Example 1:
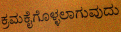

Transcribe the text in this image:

ಕ್ರಮಕೈಗೊಳ್ಳಲಾಗುವುದು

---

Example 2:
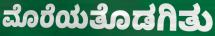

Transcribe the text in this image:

ಮೊರೆಯತೊಡಗಿತು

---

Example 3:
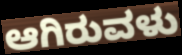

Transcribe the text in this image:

ಆಗಿರುವಳು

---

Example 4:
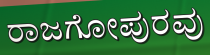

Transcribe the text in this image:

ರಾಜಗೋಪುರವು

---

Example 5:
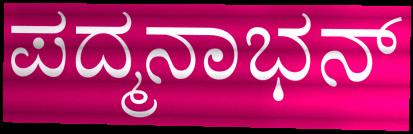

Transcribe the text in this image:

ಪದ್ಮನಾಭನ್